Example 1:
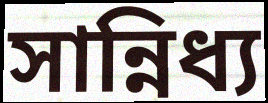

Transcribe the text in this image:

সান্নিধ্য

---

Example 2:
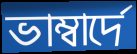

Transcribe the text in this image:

ভাম্বাৰ্দে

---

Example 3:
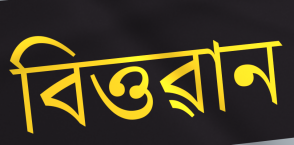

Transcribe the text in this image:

বিত্তৱান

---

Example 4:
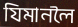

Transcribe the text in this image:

যিমানলৈ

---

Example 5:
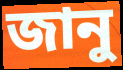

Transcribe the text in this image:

জানু